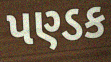
પણ્ડક